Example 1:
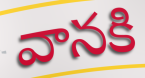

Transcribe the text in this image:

వానకి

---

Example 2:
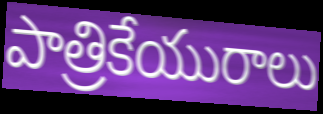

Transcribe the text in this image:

పాత్రికేయురాలు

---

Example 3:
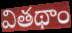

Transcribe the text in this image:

వితథాం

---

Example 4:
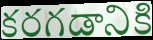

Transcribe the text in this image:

కరగడానికి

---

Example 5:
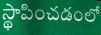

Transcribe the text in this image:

స్థాపించడంలో